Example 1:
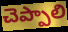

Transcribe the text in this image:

చెప్పాలి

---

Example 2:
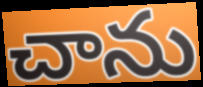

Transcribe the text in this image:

చాను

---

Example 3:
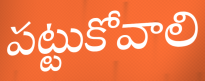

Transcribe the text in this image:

పట్టుకోవాలి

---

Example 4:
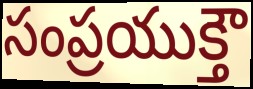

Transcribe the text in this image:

సంప్రయుక్తౌ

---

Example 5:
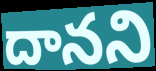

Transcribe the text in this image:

దానని